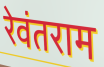
रेवंतराम